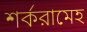
শর্করামেহ